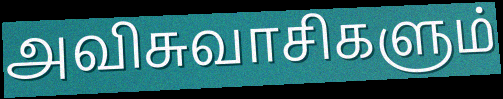
அவிசுவாசிகளும்